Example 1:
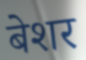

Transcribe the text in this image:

बेशर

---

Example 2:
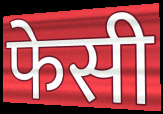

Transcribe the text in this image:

फेसी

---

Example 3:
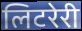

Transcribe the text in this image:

लिटरेरी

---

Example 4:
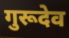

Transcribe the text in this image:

गुरूदेव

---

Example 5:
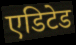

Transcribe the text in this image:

एडिटेड